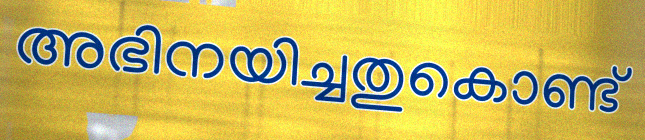
അഭിനയിച്ചതുകൊണ്ട്